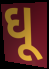
ઘૂ